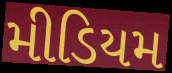
મીડિયમ